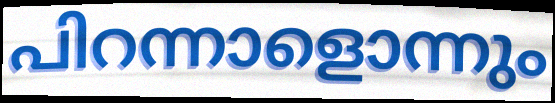
പിറന്നാളൊന്നും